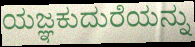
ಯಜ್ಞಕುದುರೆಯನ್ನು